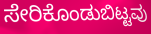
ಸೇರಿಕೊಂಡುಬಿಟ್ಟವು